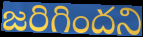
జరిగిందని